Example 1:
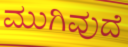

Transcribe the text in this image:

ಮುಗಿವುದೆ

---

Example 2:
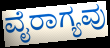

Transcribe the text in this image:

ವೈರಾಗ್ಯವು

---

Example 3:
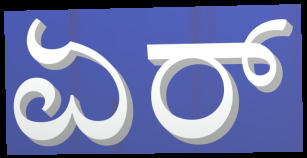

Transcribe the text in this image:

ಏರ್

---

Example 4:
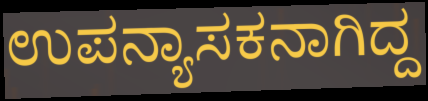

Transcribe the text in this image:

ಉಪನ್ಯಾಸಕನಾಗಿದ್ದ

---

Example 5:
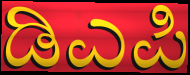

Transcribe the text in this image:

ಡಿಎಪಿ